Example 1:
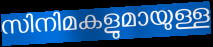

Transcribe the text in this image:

സിനിമകളുമായുള്ള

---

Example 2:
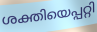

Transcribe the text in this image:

ശക്തിയെപ്പറ്റി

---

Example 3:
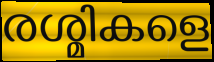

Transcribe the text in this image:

രശ്മികളെ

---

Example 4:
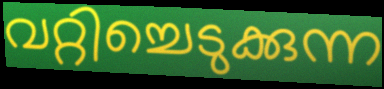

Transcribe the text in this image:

വറ്റിച്ചെടുക്കുന്ന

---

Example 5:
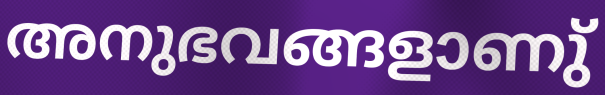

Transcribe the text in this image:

അനുഭവങ്ങളാണു്